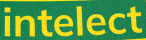
intelect